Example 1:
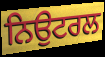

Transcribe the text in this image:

ਨਿਉਟਰਲ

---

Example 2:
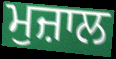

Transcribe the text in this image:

ਮੁਜ਼ਾਲ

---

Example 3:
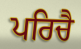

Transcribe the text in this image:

ਪਰਿਚੈ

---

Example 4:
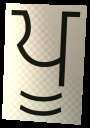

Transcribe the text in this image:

ਪੂ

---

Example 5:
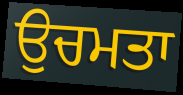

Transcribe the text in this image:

ਉਚਮਤਾ